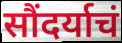
सौंदर्याचं